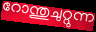
റോന്തുചുറ്റുന്ന